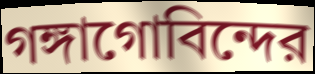
গঙ্গাগোবিন্দের